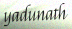
yadunath